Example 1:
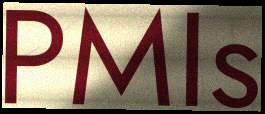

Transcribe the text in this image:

PMIs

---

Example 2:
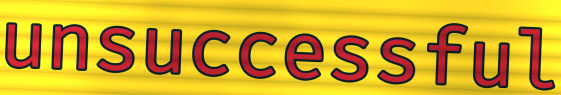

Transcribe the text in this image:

unsuccessful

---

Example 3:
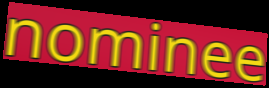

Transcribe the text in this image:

nominee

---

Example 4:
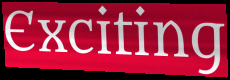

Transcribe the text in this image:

Exciting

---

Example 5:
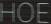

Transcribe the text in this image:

HOE